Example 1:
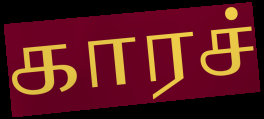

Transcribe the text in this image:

காரச்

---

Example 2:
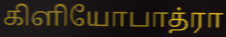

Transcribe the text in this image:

கிளியோபாத்ரா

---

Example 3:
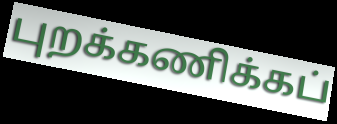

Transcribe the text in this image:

புறக்கணிக்கப்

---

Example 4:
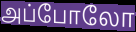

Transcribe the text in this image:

அப்போலோ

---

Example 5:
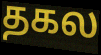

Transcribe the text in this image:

தகல